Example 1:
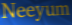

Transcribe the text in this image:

Neeyum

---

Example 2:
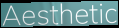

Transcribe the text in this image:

Aesthetic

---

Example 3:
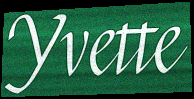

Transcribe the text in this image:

Yvette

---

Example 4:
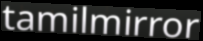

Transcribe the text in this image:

tamilmirror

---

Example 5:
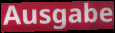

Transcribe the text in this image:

Ausgabe